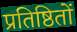
प्रतिष्ठितों